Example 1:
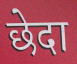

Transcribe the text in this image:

छेदा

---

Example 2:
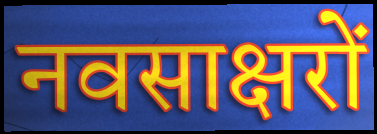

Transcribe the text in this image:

नवसाक्षरों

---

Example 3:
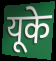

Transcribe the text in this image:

यूके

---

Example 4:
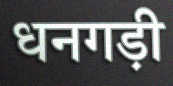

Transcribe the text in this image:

धनगड़ी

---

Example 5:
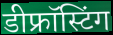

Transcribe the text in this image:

डीफ्रॉस्टिंग